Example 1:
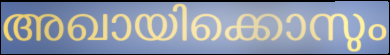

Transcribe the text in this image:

അഖായിക്കൊസും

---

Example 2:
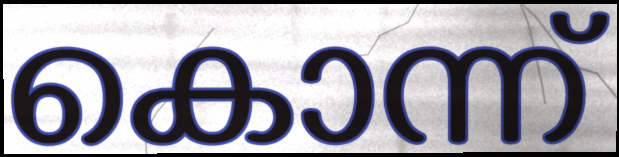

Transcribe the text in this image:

കൊന്ന്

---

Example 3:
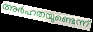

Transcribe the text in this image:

അർഹതയുണ്ടെന്ന്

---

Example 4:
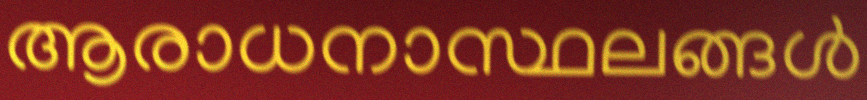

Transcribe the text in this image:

ആരാധനാസ്ഥലങ്ങൾ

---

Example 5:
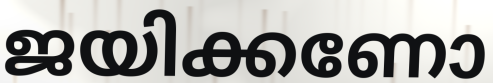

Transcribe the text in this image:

ജയിക്കണോ